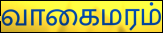
வாகைமரம்